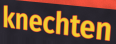
knechten